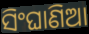
ସିଂଘାଣିଆ